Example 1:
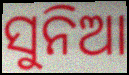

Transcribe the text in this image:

ସୁନିଆ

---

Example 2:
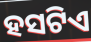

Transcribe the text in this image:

ହସଟିଏ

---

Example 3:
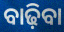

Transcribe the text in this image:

ବାଢ଼ିବା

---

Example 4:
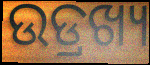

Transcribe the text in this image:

ଉଡ୍ରଖ୍ୟ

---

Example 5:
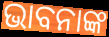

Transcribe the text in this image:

ଭାବନାଙ୍କ